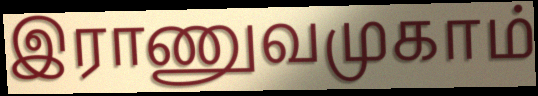
இராணுவமுகாம்